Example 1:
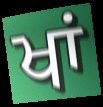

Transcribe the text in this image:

ਖਾਂ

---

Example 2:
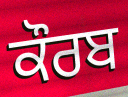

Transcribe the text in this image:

ਕੌਰਬ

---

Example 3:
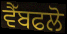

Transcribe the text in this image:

ਵੈੱਬਫਲੋ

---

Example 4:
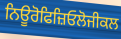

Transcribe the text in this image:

ਨਿਊਰੋਫਿਜ਼ਿਓਲੋਜੀਕਲ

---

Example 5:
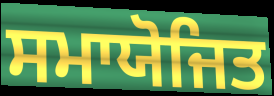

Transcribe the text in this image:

ਸਮਾਯੋਜਿਤ